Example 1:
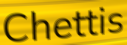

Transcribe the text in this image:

Chettis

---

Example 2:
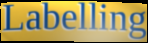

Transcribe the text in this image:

Labelling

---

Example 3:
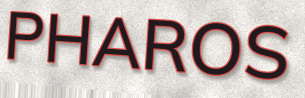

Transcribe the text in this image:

PHAROS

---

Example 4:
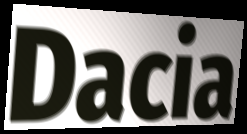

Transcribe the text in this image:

Dacia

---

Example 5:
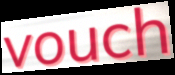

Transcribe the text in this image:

vouch